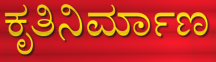
ಕೃತಿನಿರ್ಮಾಣ